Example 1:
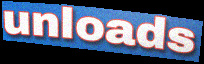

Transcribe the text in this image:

unloads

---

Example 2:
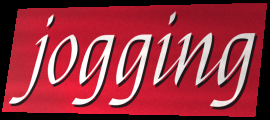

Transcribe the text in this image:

jogging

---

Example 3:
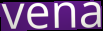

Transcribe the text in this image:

vena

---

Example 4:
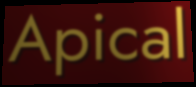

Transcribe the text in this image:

Apical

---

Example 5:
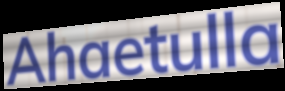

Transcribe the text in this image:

Ahaetulla